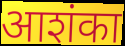
आशंका